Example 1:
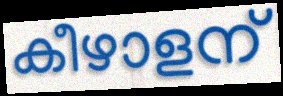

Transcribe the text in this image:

കീഴാളന്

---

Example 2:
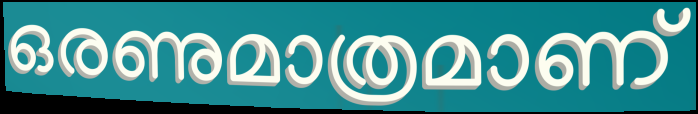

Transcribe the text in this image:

ഒരണുമാത്രമാണ്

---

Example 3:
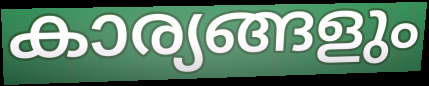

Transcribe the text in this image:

കാര്യങ്ങളും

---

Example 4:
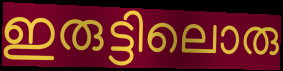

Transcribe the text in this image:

ഇരുട്ടിലൊരു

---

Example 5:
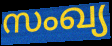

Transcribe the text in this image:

സംഖ്യ